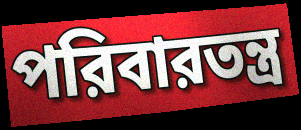
পরিবারতন্ত্র